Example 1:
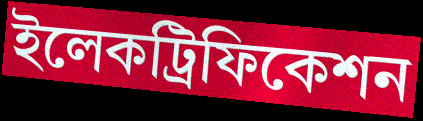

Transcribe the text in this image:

ইলেকট্রিফিকেশন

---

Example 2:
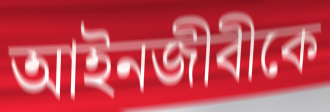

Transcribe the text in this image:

আইনজীবীকে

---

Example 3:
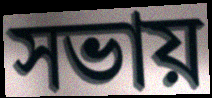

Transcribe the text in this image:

সভায়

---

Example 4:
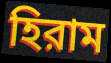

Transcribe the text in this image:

হিরাম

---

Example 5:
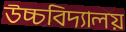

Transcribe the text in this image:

উচ্চবিদ্যালয়